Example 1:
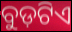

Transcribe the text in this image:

ବୁଡ଼ଟିଏ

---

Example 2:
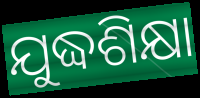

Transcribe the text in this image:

ଯୁଦ୍ଧଶିକ୍ଷା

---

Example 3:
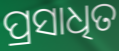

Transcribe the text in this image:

ପ୍ରସାଧିତ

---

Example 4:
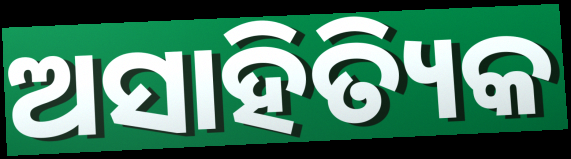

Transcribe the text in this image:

ଅସାହିତ୍ୟିକ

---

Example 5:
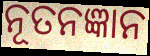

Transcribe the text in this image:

ନୂତନଜ୍ଞାନ